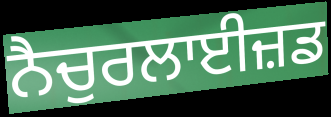
ਨੈਚੁਰਲਾਈਜ਼ਡ